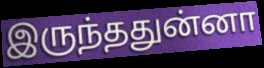
இருந்ததுன்னா